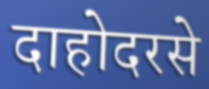
दाहोदरसे